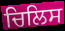
ਚਿਲਿਸ